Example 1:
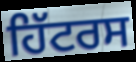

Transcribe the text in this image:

ਹਿੱਟਰਸ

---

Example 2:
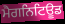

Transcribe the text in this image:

ਮੈਗਨਿਟਿਊਡ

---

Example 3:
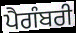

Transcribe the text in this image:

ਪੈਗੰਬਰੀ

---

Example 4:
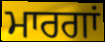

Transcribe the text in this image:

ਮਾਰਗਾਂ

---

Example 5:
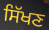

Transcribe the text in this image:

ਸਿੱਖਣ